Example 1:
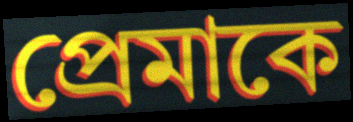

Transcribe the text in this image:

প্রেমাকে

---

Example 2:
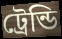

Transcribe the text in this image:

ট্রেন্ডি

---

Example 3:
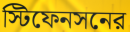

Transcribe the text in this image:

স্টিফেনসনের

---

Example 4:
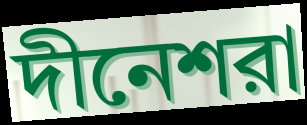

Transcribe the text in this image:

দীনেশরা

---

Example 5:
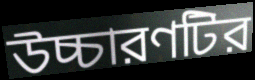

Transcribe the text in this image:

উচ্চারণটির